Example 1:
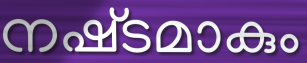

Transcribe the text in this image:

നഷ്‌ടമാകും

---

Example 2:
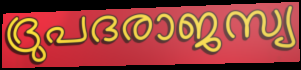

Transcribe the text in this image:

ദ്രുപദരാജസ്യ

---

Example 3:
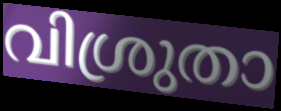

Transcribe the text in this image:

വിശ്രുതാ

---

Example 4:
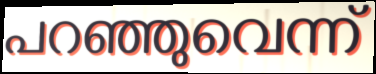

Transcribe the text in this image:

പറഞ്ഞുവെന്ന്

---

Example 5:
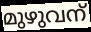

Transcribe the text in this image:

മുഴുവന്